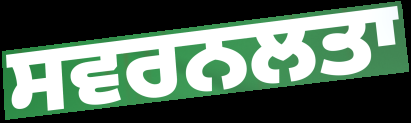
ਸਵਰਨਲਤਾ